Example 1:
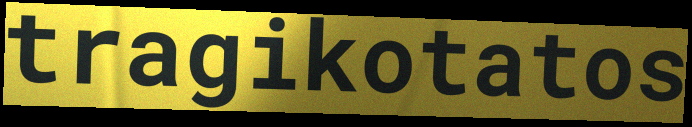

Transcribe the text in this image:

tragikotatos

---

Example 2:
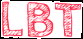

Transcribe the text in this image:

LBT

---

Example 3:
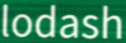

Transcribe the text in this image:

lodash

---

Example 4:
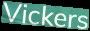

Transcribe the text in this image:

Vickers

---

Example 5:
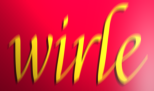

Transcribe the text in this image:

wirle